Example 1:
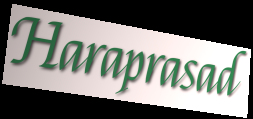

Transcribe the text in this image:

Haraprasad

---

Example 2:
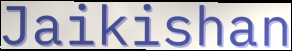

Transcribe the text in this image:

Jaikishan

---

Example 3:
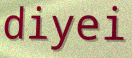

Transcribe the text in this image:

diyei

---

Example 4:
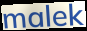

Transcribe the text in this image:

malek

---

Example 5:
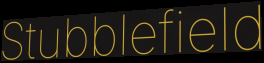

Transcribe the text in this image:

Stubblefield